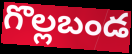
గొల్లబండ